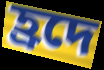
হ্রদে